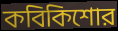
কবিকিশোর